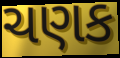
ચણક